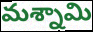
మశ్నామి